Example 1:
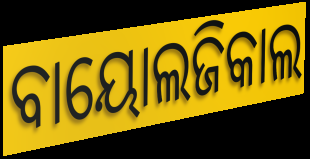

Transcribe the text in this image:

ବାୟୋଲଜିକାଲ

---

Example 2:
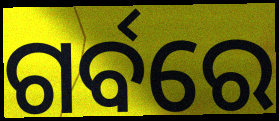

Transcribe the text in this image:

ଗର୍ବରେ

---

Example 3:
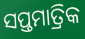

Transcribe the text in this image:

ସପ୍ତମାତ୍ରିକ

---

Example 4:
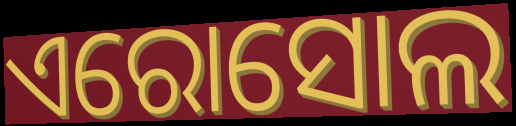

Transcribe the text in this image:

ଏରୋସୋଲ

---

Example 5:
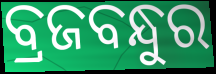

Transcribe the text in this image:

ବ୍ରଜବନ୍ଧୁର